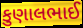
કુણાલભાઈ